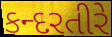
કન્દરતીરે